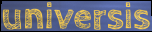
universis